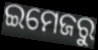
ଇମେଜରୁ